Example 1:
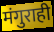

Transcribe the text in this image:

मंगुराही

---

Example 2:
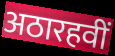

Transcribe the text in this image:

अठारहवीं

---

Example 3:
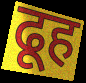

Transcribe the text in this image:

ढूह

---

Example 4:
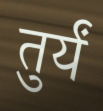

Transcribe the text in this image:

तुर्यं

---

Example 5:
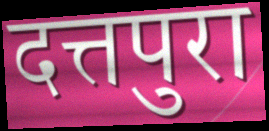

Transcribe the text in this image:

दत्तपुरा